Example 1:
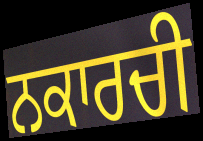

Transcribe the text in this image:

ਨਕਾਰਚੀ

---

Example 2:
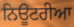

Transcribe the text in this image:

ਨਿਊਟਰੀਆ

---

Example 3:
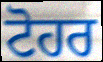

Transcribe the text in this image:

ਟੋਹਰ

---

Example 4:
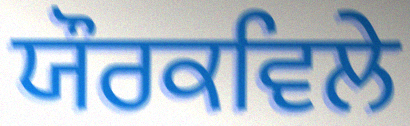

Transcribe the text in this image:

ਯੌਰਕਵਿਲੇ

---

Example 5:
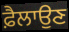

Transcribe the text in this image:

ਫ਼ੈਲਾਉਣ